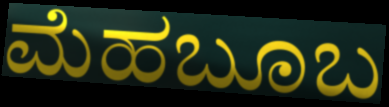
ಮೆಹಬೂಬ